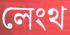
লেংথ